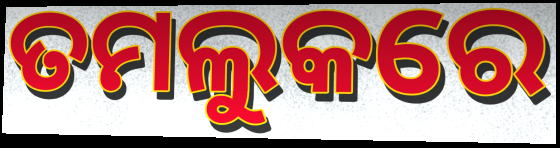
ତମଲୁକରେ